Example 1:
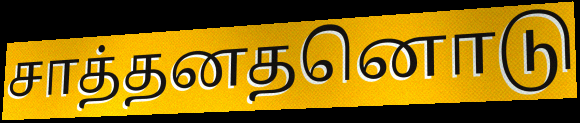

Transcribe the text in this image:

சாத்தனதனொடு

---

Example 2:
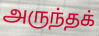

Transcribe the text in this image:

அருந்தக்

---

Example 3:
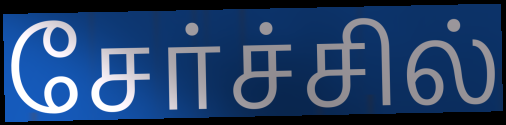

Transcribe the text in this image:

சேர்ச்சில்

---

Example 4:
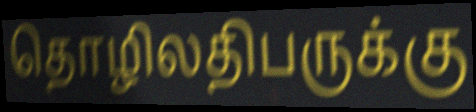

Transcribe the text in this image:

தொழிலதிபருக்கு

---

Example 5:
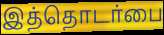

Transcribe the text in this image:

இத்தொடர்பை